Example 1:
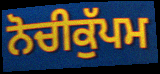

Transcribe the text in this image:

ਨੋਚੀਕੁੱਪਮ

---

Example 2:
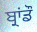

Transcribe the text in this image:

ਬ੍ਰਾਂਡੌ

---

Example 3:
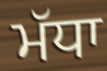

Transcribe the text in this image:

ਮੱਧਾ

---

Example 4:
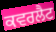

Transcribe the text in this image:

ਕਵਰਲੈਟ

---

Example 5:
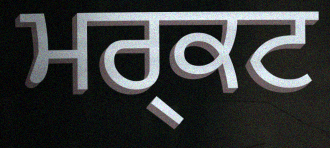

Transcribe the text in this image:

ਮਰ੍ਕਟ